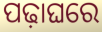
ପଢ଼ାଘରେ